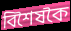
বিশৈষকৈ